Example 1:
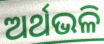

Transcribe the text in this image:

ଅର୍ଥଭଳି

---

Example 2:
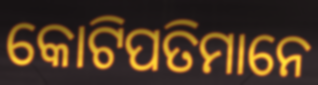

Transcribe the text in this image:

କୋଟିପତିମାନେ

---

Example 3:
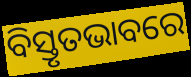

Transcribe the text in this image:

ବିସ୍ତୃତଭାବରେ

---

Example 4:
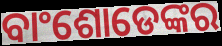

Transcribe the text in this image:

ବାଂଶୋଡେଙ୍କର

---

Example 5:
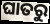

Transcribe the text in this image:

ଘାତରୁ